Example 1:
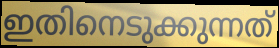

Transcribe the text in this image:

ഇതിനെടുക്കുന്നത്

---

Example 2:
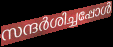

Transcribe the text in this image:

സന്ദർശിച്ചപ്പോൾ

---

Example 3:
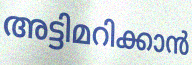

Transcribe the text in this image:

അട്ടിമറിക്കാൻ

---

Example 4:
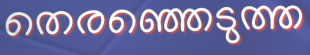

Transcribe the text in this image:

തെരഞ്ഞെടുത്ത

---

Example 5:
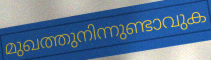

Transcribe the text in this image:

മുഖത്തുനിന്നുണ്ടാവുക